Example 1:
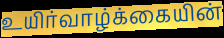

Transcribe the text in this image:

உயிர்வாழ்க்கையின்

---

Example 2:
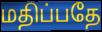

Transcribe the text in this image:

மதிப்பதே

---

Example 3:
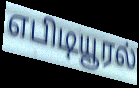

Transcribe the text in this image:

எபிடியூரல்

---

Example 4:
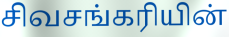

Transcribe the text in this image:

சிவசங்கரியின்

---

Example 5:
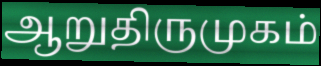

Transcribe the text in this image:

ஆறுதிருமுகம்